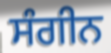
ਸੰਗੀਨ